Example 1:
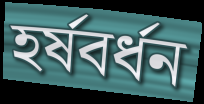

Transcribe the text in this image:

হর্ষবর্ধন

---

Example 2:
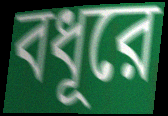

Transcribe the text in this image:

বধূরে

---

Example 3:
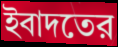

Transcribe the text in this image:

ইবাদতের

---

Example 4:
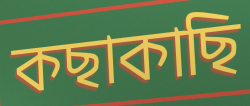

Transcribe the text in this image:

কছাকাছি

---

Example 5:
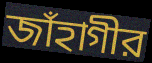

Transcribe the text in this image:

জাঁহাগীর